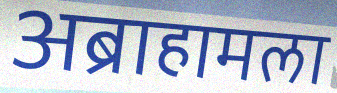
अब्राहामला